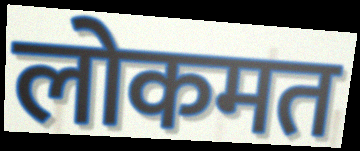
लोकमत